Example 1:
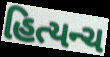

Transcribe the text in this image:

હિત્યન્ચ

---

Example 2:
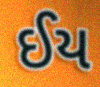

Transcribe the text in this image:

ઈય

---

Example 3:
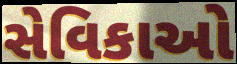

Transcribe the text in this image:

સેવિકાઓ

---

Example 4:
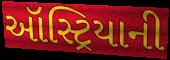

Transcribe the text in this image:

ઑસ્ટ્રિયાની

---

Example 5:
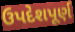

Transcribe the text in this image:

ઉપદેશપૂર્ણ